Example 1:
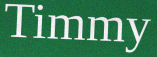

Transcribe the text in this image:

Timmy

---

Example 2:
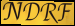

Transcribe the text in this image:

NDRF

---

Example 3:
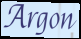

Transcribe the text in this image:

Argon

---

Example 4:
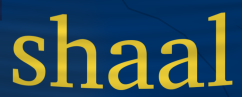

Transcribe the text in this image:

shaal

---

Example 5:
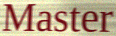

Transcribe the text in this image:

Master